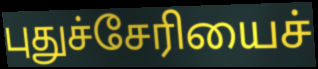
புதுச்சேரியைச்